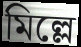
মিল্লে